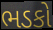
ભડકો